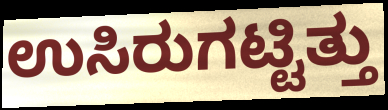
ಉಸಿರುಗಟ್ಟಿತ್ತು